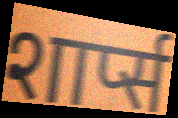
शार्प्स